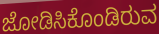
ಜೋಡಿಸಿಕೊಂಡಿರುವ